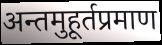
अन्तमुहूर्तप्रमाण